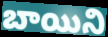
బాయిని